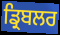
ਡ੍ਰਿਬਲਰ